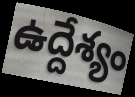
ఉద్దేశ్యం